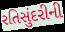
રતિસુંદરીની